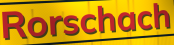
Rorschach